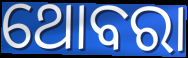
ଥୋବରା